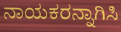
ನಾಯಕರನ್ನಾಗಿಸಿ